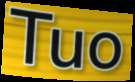
Tuo